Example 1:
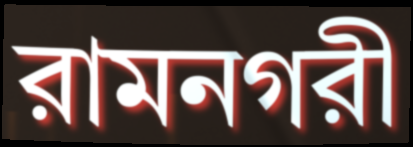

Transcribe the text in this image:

রামনগরী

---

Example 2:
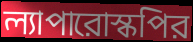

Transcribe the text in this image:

ল্যাপারোস্কপির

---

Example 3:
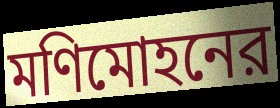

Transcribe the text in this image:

মণিমোহনের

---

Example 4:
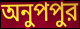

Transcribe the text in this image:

অনুপপুর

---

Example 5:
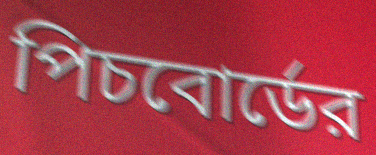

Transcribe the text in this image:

পিচবোর্ডের